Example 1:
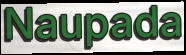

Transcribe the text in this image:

Naupada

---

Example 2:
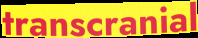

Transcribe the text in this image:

transcranial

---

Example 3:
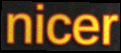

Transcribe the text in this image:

nicer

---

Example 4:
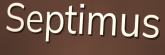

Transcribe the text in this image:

Septimus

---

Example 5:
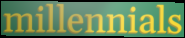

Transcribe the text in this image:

millennials